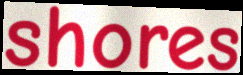
shores